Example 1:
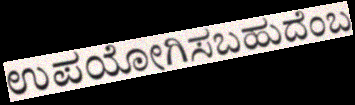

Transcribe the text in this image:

ಉಪಯೋಗಿಸಬಹುದೆಂಬ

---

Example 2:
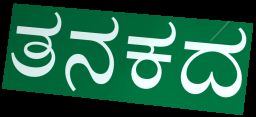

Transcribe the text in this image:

ತನಕದ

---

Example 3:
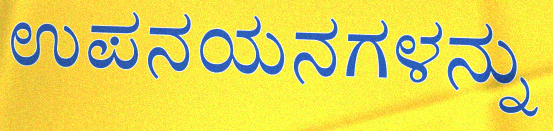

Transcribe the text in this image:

ಉಪನಯನಗಳನ್ನು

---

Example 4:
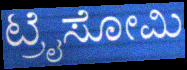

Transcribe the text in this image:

ಟ್ರೈಸೋಮಿ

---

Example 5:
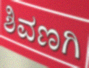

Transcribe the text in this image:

ಶಿವಣಗಿ